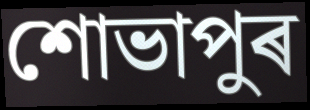
শোভাপুৰ